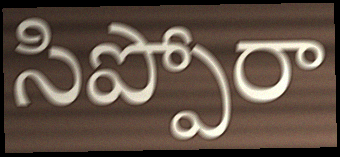
సిప్పోరా